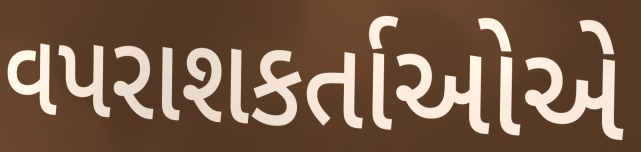
વપરાશકર્તાઓએ